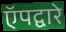
ऍपद्वारे